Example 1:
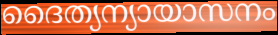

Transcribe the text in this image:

ദൈത്യന്യായാസനം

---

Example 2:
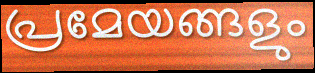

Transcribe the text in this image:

പ്രമേയങ്ങളും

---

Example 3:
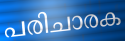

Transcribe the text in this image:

പരിചാരക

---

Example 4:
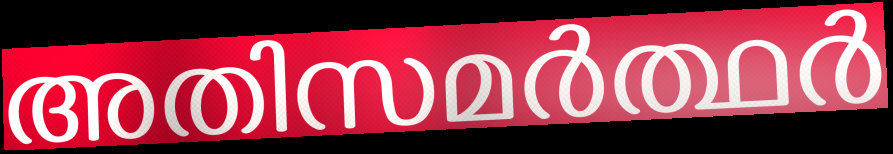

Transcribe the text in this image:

അതിസമർത്ഥർ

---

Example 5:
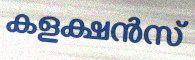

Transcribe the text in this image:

കളക്ഷൻസ്